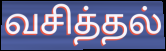
வசித்தல்